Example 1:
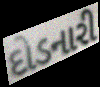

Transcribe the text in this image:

દોડનારી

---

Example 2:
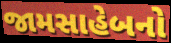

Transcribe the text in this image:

જામસાહેબનો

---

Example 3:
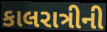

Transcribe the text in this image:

કાલરાત્રીની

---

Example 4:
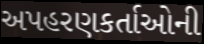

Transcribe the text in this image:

અપહરણકર્તાઓની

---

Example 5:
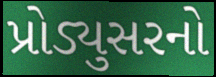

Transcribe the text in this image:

પ્રોડ્યુસરનો